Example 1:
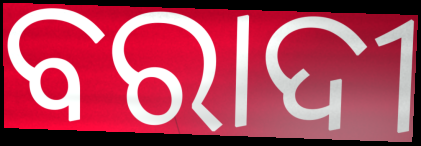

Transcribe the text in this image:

ବରାଦୀ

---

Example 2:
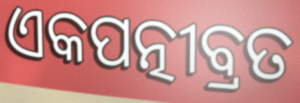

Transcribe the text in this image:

ଏକପତ୍ନୀବ୍ରତ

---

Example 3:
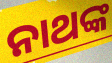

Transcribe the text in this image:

ନାଥଙ୍କ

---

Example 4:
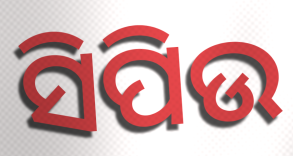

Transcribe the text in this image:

ସିପିଉ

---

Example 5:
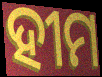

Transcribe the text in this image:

ହୀମ